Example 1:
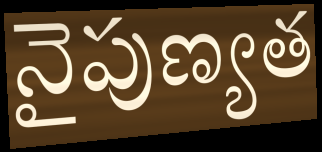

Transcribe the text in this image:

నైపుణ్యత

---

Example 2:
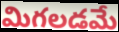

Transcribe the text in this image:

మిగలడమే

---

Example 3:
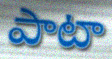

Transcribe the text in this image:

పాటా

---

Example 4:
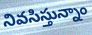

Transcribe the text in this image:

నివసిస్తున్నాం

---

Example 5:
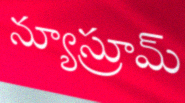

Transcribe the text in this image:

న్యూస్రూమ్